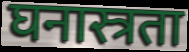
घनास्त्रता